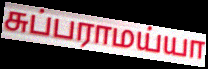
சுப்பராமய்யா